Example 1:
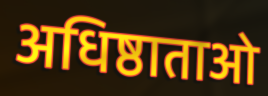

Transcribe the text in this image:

अधिष्ठाताओ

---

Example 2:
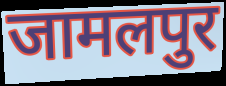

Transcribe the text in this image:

जामलपुर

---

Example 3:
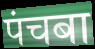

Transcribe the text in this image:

पंचबा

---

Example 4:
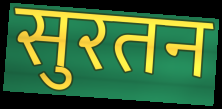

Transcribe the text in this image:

सुरतन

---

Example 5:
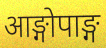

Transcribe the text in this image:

आङ्गोपाङ्ग